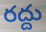
రద్దు